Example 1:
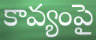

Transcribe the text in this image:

కావ్యంపై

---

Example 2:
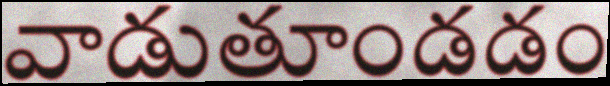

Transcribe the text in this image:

వాడుతూండడం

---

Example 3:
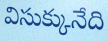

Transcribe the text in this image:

విసుక్కునేది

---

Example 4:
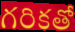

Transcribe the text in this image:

గరికతో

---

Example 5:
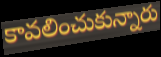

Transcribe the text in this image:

కావలించుకున్నారు